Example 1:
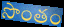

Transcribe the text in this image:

సొంతం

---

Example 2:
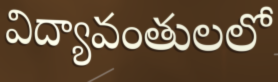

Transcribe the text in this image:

విద్యావంతులలో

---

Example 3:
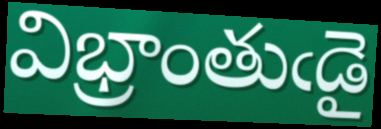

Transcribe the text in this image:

విభ్రాంతుఁడై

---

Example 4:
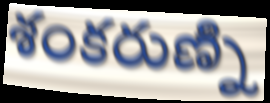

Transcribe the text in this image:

శంకరుణ్ని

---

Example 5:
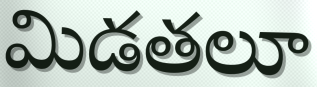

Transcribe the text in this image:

మిడతలూ